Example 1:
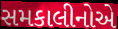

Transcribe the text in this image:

સમકાલીનોએ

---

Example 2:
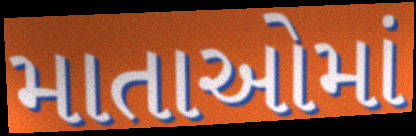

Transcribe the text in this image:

માતાઓમાં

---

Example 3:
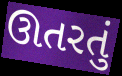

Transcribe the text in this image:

ઊતરતું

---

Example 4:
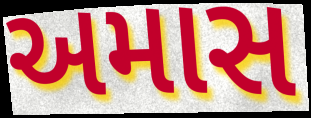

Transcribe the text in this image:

અમાસ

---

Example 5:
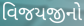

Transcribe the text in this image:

વિજયજીનો